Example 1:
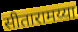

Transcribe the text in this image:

सीतारामय्या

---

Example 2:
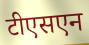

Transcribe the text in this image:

टीएसएन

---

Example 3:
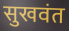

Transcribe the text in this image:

सुखवंत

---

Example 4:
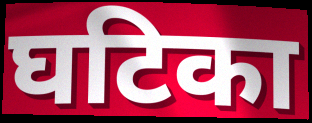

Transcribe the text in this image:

घटिका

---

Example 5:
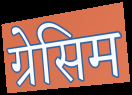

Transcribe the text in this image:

ग्रेसिम